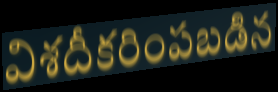
విశదీకరింపబడిన